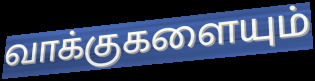
வாக்குகளையும்